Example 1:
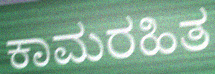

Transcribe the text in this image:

ಕಾಮರಹಿತ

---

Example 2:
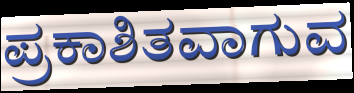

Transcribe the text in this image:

ಪ್ರಕಾಶಿತವಾಗುವ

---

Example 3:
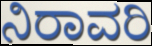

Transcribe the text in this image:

ನಿರಾವರಿ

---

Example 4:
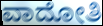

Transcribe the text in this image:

ವಾದೋತಿ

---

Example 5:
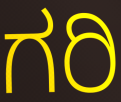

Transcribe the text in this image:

ಗರಿ